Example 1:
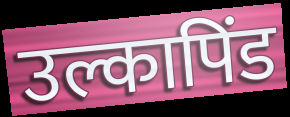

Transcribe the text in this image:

उल्कापिंड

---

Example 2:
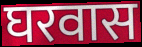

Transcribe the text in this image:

घरवास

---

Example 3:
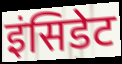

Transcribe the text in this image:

इंसिडेट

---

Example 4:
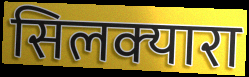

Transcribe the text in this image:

सिलक्यारा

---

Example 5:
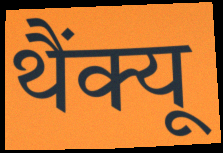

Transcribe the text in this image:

थैंक्यू